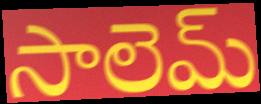
సాలెమ్